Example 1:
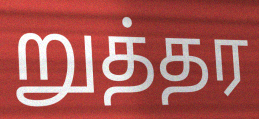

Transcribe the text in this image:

றுத்தர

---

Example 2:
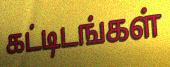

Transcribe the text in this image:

கட்டிடங்கள்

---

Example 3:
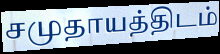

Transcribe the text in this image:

சமுதாயத்திடம்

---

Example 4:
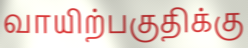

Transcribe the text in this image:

வாயிற்பகுதிக்கு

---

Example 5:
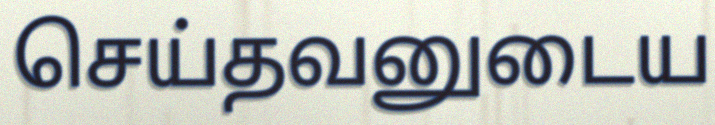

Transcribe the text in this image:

செய்தவனுடைய